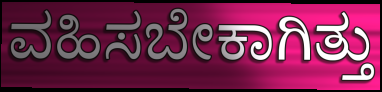
ವಹಿಸಬೇಕಾಗಿತ್ತು